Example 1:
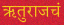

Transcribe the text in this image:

ऋतुराजचं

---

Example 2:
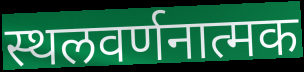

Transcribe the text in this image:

स्थलवर्णनात्मक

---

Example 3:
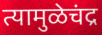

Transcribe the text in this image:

त्यामुळेचंद्र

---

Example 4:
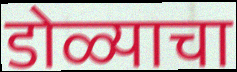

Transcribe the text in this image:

डोळ्याचा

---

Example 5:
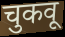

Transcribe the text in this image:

चुकवू